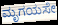
ಮೃಗಯಸೇ